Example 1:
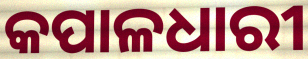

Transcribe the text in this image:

କପାଳଧାରୀ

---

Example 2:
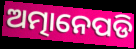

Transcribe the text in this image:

ଅତ୍ମାନେପଡି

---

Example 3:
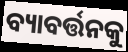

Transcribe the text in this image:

ବ୍ୟାବର୍ତ୍ତନକୁ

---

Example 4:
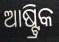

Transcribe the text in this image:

ଆଷ୍ଟ୍ରିକ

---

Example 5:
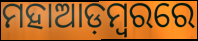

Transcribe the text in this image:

ମହାଆଡ଼ମ୍ୱରରେ